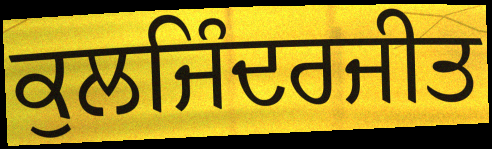
ਕੁਲਜਿੰਦਰਜੀਤ